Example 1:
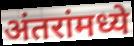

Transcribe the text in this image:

अंतरांमध्ये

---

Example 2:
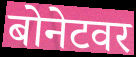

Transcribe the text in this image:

बोनेटवर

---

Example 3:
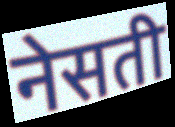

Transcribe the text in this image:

नेसती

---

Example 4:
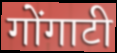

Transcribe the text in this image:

गोंगाटी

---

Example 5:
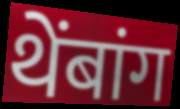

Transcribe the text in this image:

थेंबांग